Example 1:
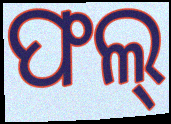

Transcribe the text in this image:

ଫଲ୍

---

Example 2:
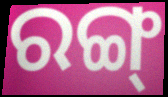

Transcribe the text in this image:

ରଙ୍ଗ୍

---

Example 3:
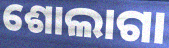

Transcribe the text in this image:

ଶୋଲାଗା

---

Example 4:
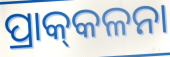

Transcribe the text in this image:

ପ୍ରାକ୍‌କଳନା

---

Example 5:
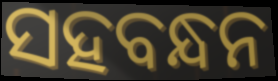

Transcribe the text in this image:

ସହବନ୍ଧନ